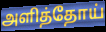
அளித்தோய்